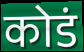
कोडं